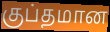
குப்தமான